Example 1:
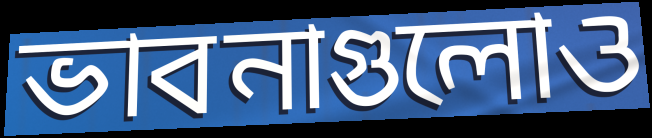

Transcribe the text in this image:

ভাবনাগুলোও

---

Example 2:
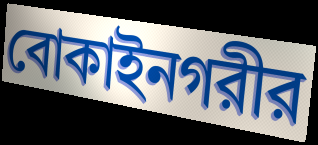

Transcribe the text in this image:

বোকাইনগরীর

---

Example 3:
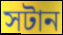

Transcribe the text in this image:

সটান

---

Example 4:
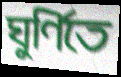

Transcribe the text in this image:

ঘুর্ণিতে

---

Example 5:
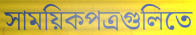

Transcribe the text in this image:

সাময়িকপত্রগুলিতে